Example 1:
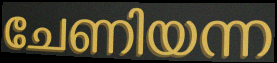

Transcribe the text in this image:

ചേണിയന്ന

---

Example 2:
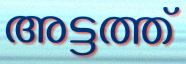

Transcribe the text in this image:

അട്ടത്ത്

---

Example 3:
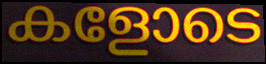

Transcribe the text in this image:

കളോടെ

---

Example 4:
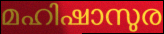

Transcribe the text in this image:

മഹിഷാസുര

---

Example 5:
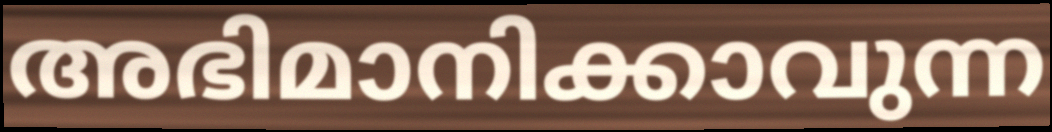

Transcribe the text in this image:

അഭിമാനിക്കാവുന്ന